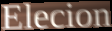
Elecion